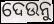
ଦେଉନୁ